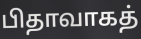
பிதாவாகத்